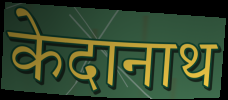
केदानाथ